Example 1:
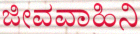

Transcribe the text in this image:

ಜೀವವಾಹಿನಿ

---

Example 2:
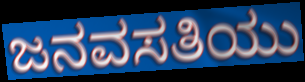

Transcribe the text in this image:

ಜನವಸತಿಯು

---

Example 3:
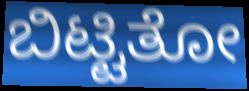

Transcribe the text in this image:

ಬಿಟ್ಟಿತೋ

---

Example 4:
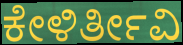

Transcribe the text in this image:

ಕೇಳಿರ್ತೀವಿ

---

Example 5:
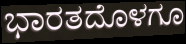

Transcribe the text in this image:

ಭಾರತದೊಳಗೂ